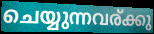
ചെയ്യുന്നവര്ക്കു